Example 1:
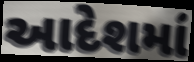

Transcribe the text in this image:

આદેશમાં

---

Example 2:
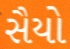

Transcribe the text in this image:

સૈયો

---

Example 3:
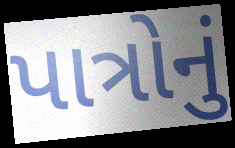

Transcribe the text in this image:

પાત્રોનું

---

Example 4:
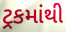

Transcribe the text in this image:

ટ્રકમાંથી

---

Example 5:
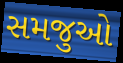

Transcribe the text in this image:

સમજુઓ